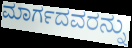
ಮಾರ್ಗದವರನ್ನು